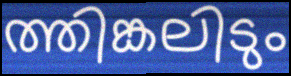
ത്തിങ്കലിടും